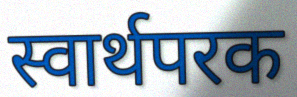
स्वार्थपरक